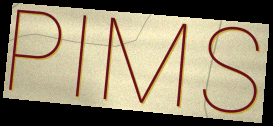
PIMS